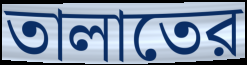
তালাতের